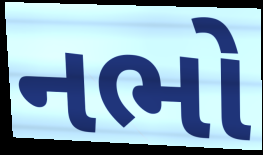
નભો